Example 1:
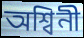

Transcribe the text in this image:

অশ্বিনী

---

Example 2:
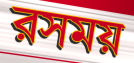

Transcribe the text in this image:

রসময়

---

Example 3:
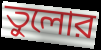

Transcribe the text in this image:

তুলোর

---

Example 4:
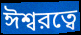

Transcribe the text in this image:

ঈশ্বরত্বে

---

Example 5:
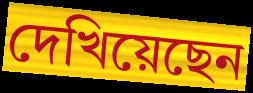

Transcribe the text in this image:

দেখিয়েছেন